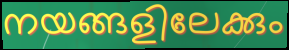
നയങ്ങളിലേക്കും